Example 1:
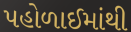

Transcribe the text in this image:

પહોળાઈમાંથી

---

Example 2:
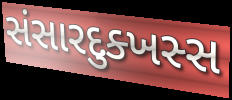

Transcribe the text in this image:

સંસારદુક્ખસ્સ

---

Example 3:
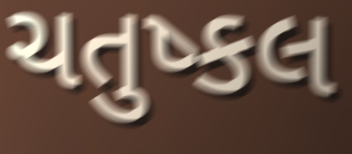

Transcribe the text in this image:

ચતુષ્કલ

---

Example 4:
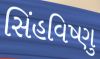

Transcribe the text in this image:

સિંહવિષ્ણુ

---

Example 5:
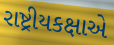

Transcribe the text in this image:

રાષ્ટ્રીયકક્ષાએ